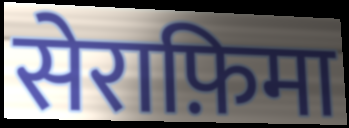
सेराफ़िमा